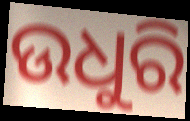
ଉଧୁରି